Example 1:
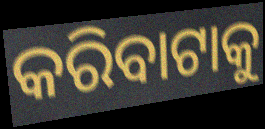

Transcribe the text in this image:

କରିବାଟାକୁ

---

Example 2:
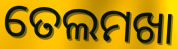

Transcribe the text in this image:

ତେଲମଖା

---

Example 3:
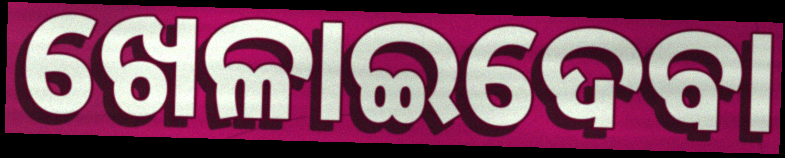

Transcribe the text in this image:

ଖେଳାଇଦେବା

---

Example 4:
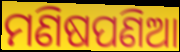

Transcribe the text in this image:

ମଣିଷପଣିଆ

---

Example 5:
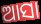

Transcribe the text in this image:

ଆସା